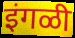
इंगळी